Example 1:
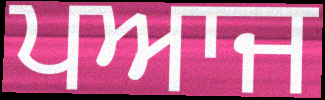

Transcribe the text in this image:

ਪਆਜ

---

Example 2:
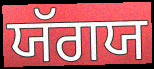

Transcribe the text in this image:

ਯੱਗਯ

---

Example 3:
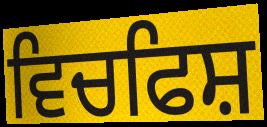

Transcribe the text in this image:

ਵਿਚਫਿਸ਼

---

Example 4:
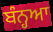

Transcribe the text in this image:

ਬੰਨ੍ਹਆ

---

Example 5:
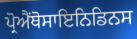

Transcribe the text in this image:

ਪ੍ਰੋਐਂਥੋਸਾਇਨਿਡਿਨਸ